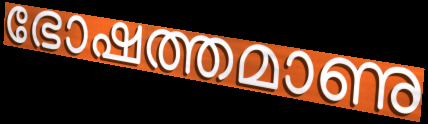
ഭോഷത്തമാണു